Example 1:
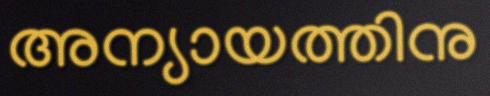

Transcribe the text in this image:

അന്യായത്തിനു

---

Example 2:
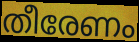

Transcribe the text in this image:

തീരേണം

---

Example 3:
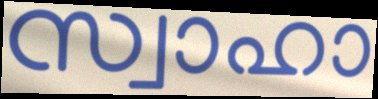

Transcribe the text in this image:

സ്വാഹാ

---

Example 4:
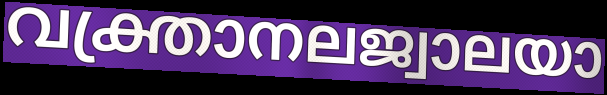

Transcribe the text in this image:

വക്ത്രാനലജ്വാലയാ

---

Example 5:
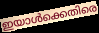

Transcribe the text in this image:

ഇയാൾക്കെതിരെ